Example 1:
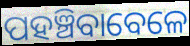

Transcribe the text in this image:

ପହଞ୍ଚିବାବେଳେ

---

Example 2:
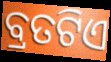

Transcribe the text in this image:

ବ୍ରତଟିଏ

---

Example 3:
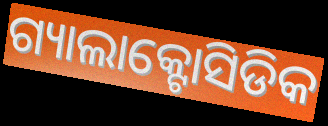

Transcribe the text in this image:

ଗ୍ୟାଲାକ୍ଟୋସିଡିକ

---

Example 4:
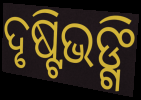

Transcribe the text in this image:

ଦୃଷ୍ଟିଭଙ୍ଗି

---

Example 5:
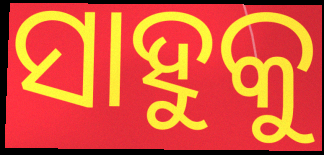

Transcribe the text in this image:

ସାହୁକୁ